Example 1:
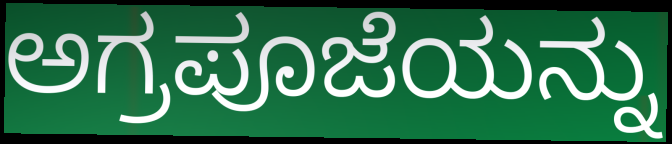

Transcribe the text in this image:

ಅಗ್ರಪೂಜೆಯನ್ನು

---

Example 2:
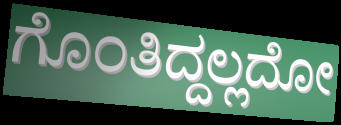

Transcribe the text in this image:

ಗೊಂತಿದ್ದಲ್ಲದೋ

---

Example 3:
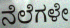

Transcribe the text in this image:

ನೆಲೆಗಳೇ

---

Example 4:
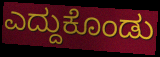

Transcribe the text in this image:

ಎದ್ದುಕೊಂಡು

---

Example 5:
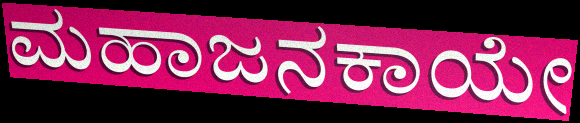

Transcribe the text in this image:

ಮಹಾಜನಕಾಯೇ